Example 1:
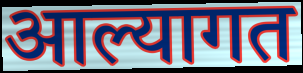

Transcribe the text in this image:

आल्यागत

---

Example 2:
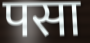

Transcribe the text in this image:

पसा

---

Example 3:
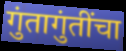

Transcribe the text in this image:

गुंतागुंतींचा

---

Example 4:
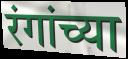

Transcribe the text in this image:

रंगांच्या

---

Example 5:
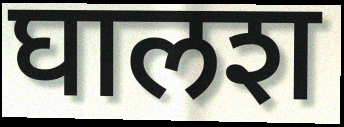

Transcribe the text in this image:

घालश